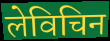
लेविचिन